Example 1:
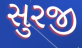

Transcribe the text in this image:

સુરજી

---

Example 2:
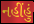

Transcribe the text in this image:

નહીંહું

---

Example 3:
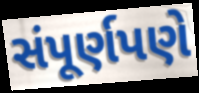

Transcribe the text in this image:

સંપૂર્ણપણે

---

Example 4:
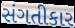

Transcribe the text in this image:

સંગતીકાર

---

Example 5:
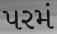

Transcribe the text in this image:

પરમં